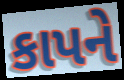
કાપને